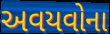
અવયવોના